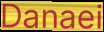
Danaei